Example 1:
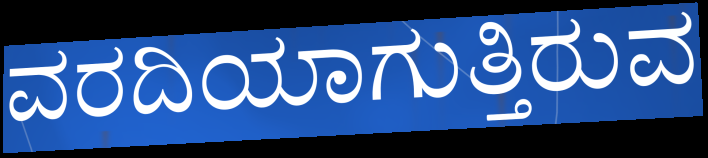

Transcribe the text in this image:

ವರದಿಯಾಗುತ್ತಿರುವ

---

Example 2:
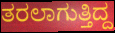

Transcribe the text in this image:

ತರಲಾಗುತ್ತಿದ್ದ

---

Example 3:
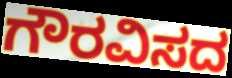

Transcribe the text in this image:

ಗೌರವಿಸದ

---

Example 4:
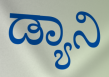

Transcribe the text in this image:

ಡ್ಯಾನಿ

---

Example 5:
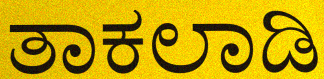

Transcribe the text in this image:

ತಾಕಲಾಡಿ